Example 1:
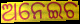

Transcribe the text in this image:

ଅନେଇଚ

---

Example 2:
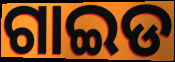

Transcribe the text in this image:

ଗାଇଡ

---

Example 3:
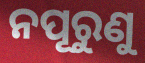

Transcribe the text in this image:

ନପୂରୁଣୁ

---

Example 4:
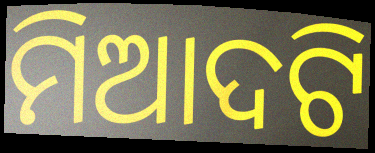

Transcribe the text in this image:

ମିଆଦଟି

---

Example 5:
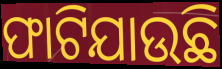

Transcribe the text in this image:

ଫାଟିଯାଉଛି